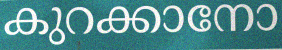
കുറക്കാനോ